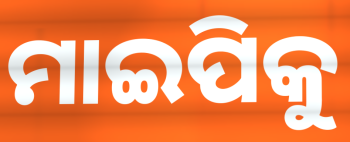
ମାଇପିକୁ